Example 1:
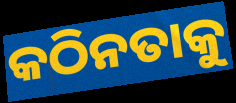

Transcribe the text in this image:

କଠିନତାକୁ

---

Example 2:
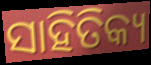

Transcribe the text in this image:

ସାହିତିକ୍ୟ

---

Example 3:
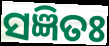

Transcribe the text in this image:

ସଜ୍ଞିତଃ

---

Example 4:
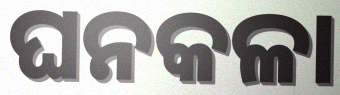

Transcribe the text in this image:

ଘନକଳା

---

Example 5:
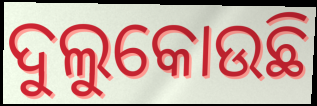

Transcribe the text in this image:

ଦୁଲୁକୋଉଛି